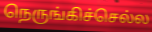
நெருங்கிச்செல்ல